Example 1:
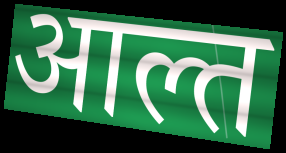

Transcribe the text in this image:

आल्त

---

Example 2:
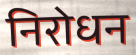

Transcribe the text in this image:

निरोधन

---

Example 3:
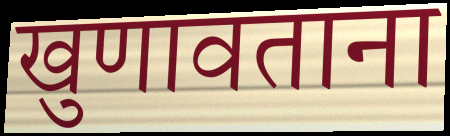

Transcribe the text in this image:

खुणावताना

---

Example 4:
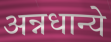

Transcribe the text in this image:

अन्नधान्ये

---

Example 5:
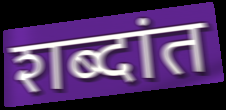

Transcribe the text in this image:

शब्दांत